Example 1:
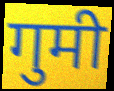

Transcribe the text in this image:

गुमी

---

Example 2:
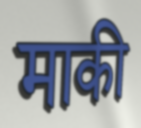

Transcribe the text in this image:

माकी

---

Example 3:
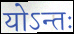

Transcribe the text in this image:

योऽन्तः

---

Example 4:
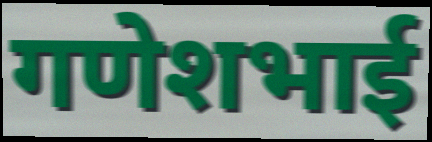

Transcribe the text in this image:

गणेशभाई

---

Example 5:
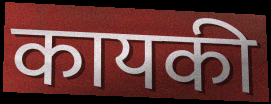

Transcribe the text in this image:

कायकी